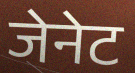
जेनेट